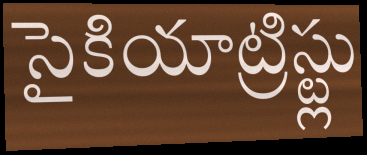
సైకియాట్రిస్ట్లు